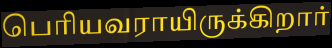
பெரியவராயிருக்கிறார்